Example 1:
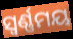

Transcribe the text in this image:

ସ୍ଵର୍ଣ୍ଣମୟ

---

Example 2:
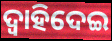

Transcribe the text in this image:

ଦ୍ୱାହିଦେଇ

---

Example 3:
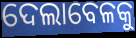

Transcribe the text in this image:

ଦେଲାବେଳକୁ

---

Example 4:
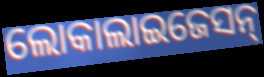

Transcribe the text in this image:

ଲୋକାଲାଇଜେସନ୍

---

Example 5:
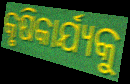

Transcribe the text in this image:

କୃଷିକାର୍ଯ୍ୟକୁ